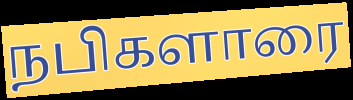
நபிகளாரை